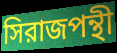
সিরাজপন্থী